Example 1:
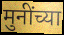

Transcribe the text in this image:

मुनींच्या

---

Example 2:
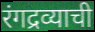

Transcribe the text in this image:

रंगद्रव्याची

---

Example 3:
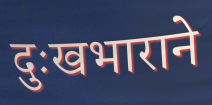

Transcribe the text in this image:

दुःखभाराने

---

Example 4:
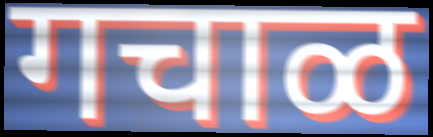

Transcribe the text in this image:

गचाळ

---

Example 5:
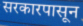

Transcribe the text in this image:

सरकारपासून